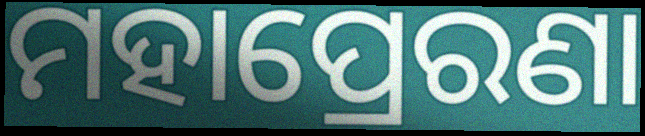
ମହାପ୍ରେରଣା